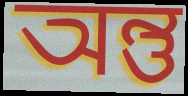
অন্তু